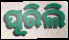
ଘୂରିଲି